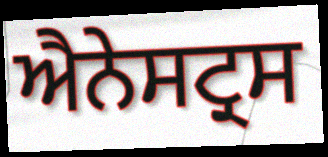
ਐਨੇਸਟ੍ਰਸ